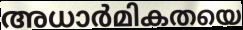
അധാർമികതയെ